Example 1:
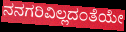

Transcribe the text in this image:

ನನಗರಿವಿಲ್ಲದಂತೆಯೇ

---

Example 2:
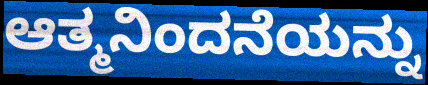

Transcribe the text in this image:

ಆತ್ಮನಿಂದನೆಯನ್ನು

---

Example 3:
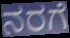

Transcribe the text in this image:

ನರಗೆ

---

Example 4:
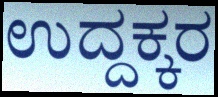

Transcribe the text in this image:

ಉದ್ದಕ್ಕರ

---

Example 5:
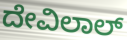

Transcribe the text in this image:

ದೇವಿಲಾಲ್